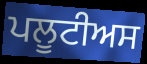
ਪਲੂਟੀਅਸ